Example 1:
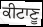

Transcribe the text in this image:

ਕੀਟਾਣੂ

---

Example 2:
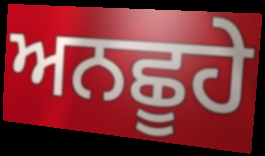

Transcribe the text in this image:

ਅਨਛੂਹੇ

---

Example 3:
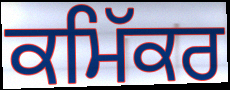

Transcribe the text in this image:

ਕਮਿੱਕਰ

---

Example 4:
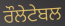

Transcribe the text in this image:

ਰੌਲੇਟੇਬਲ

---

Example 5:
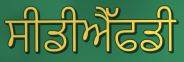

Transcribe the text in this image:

ਸੀਡੀਐੱਫਡੀ